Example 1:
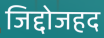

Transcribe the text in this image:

जिद्दोजहद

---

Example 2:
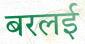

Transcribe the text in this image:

बरलई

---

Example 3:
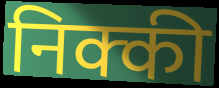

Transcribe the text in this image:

निक्‍की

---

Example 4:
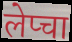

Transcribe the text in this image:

लेप्चा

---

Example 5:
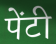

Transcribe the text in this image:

पेंटी